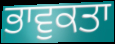
ਭਾਵੁਕਤਾ